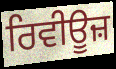
ਰਿਵੀਊਜ਼